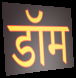
डॉम